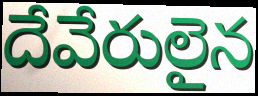
దేవేరులైన